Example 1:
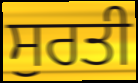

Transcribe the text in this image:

ਸੁਰਤੀ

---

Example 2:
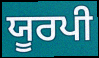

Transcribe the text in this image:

ਯੂਰਪੀ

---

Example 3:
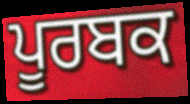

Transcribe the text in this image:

ਪੂਰਬਕ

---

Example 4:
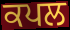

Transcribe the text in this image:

ਕਪਲ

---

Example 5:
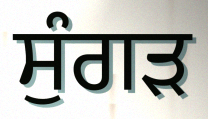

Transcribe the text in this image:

ਸੁੰਗੜ